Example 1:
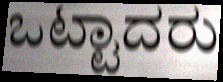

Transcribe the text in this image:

ಒಟ್ಟಾದರು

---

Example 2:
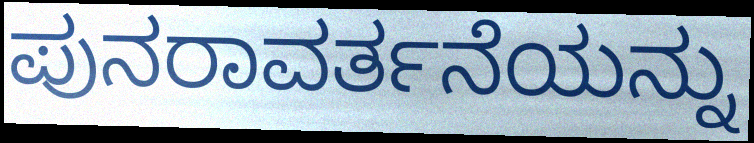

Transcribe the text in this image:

ಪುನರಾವರ್ತನೆಯನ್ನು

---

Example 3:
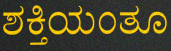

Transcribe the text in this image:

ಶಕ್ತಿಯಂತೂ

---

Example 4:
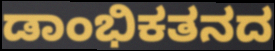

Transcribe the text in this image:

ಡಾಂಭಿಕತನದ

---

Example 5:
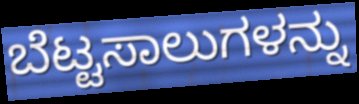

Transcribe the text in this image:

ಬೆಟ್ಟಸಾಲುಗಳನ್ನು